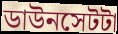
ডাউনসেটটা